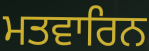
ਮਤਵਾਰਿਨ